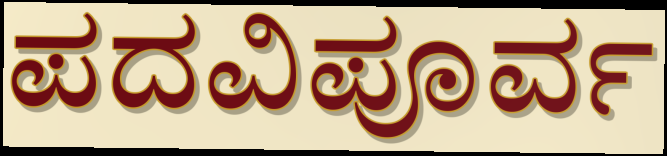
ಪದವಿಪೂರ್ವ